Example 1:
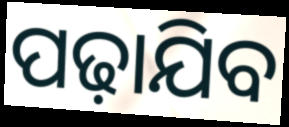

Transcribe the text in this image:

ପଢ଼ାଯିବ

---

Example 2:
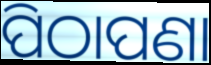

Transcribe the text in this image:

ପିଠାପଣା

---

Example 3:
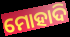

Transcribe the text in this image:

ମୋହାଦି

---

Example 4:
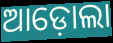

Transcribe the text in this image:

ଆଡ଼ୋଲା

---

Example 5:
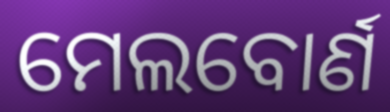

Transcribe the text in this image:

ମେଲବୋର୍ଣ